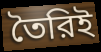
তৈরিই